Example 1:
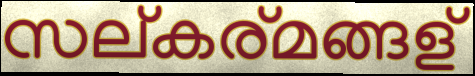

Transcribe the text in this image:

സല്കര്മങ്ങള്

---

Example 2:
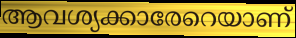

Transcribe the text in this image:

ആവശ്യക്കാരേറെയാണ്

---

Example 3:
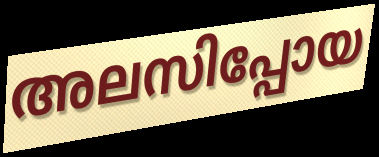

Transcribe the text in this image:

അലസിപ്പോയ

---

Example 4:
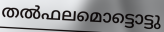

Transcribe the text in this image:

തൽഫലമൊട്ടൊട്ടു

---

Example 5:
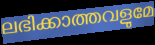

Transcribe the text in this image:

ലഭിക്കാത്തവളുമേ